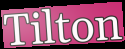
Tilton